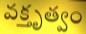
వక్తృత్వం